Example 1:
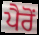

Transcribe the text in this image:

ਪੈਰੋਂ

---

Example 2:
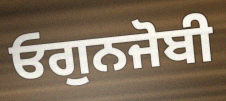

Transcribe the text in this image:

ਓਗੁਨਜੋਬੀ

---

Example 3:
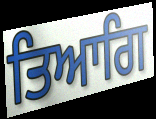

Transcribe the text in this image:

ਤਿਆਗਿ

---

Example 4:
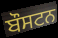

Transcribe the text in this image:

ਬੌਸਟਨ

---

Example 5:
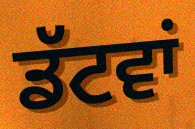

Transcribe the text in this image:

ਡੱਟਵਾਂ